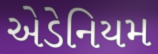
એડેનિયમ